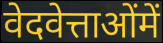
वेदवेत्ताओंमें